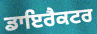
ਡਾਇਰੈਕਟਰ